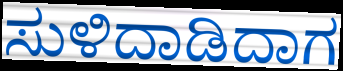
ಸುಳಿದಾಡಿದಾಗ